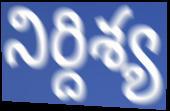
నిర్దిశ్య